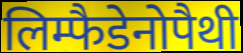
लिम्फैडेनोपैथी